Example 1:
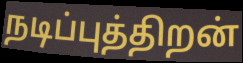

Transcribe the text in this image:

நடிப்புத்திறன்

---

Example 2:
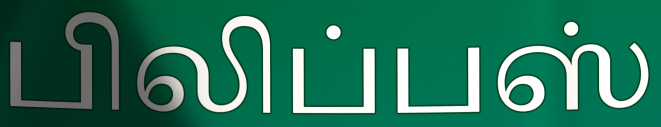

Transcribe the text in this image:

பிலிப்பஸ்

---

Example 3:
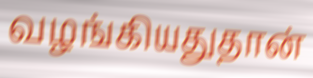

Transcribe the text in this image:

வழங்கியதுதான்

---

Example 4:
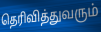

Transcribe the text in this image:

தெரிவித்துவரும்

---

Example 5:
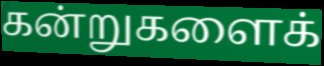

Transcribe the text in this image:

கன்றுகளைக்